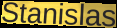
Stanislas